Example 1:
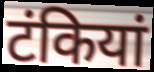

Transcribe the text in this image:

टंकियां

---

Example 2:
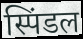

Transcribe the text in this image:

स्पिंडल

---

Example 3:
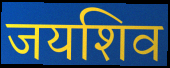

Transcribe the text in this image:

जयशिव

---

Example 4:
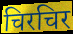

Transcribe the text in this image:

चिरचिर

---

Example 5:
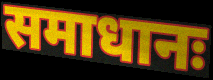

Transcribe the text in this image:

समाधानः